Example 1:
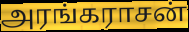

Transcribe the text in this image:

அரங்கராசன்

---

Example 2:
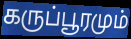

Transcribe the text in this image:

கருப்பூரமும்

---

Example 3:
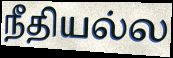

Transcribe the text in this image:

நீதியல்ல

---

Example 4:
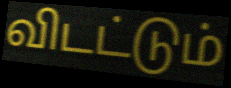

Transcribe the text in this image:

விடட்டும்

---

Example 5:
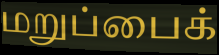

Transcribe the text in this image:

மறுப்பைக்